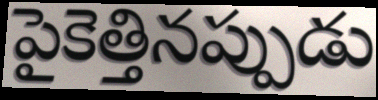
పైకెత్తినప్పుడు